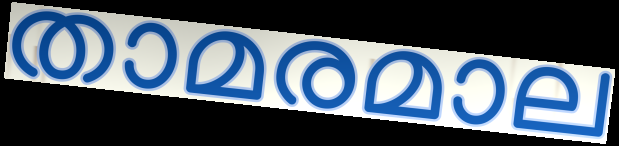
താമരമാല